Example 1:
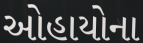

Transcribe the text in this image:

ઓહાયોના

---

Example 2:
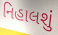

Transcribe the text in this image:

નિહાલશું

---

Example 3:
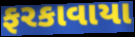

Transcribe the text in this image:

ફરકાવાયા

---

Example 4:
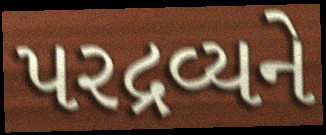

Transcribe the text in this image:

પરદ્રવ્યને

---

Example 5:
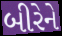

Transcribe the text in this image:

બીરેને